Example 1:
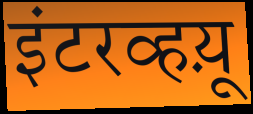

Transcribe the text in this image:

इंटरव्हय़ू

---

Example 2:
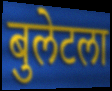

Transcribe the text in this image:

बुलेटला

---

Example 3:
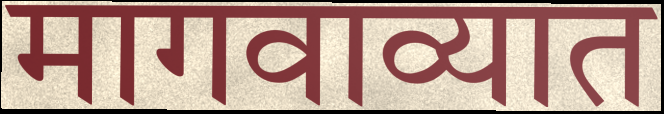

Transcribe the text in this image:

मागवाव्यात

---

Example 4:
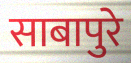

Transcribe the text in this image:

साबापुरे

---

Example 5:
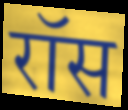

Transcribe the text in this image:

रॉस